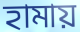
হামায়